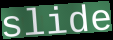
slide